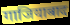
गाजियाबाद